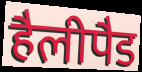
हैलीपैड